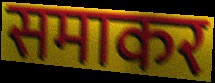
समाकर